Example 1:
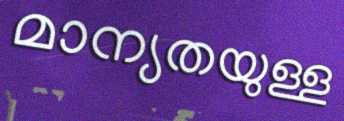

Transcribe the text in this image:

മാന്യതയുള്ള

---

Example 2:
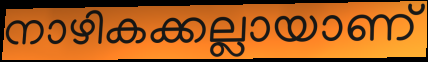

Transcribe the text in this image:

നാഴികക്കല്ലായാണ്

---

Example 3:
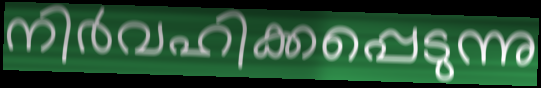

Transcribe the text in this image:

നിർവഹിക്കപ്പെടുന്നു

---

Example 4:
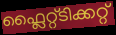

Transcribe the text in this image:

ഫ്ലൈറ്റ്ടിക്കറ്റ്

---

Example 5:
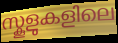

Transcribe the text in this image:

സ്കൂളുകളിലെ